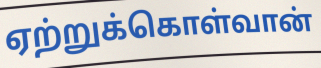
ஏற்றுக்கொள்வான்